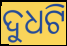
ଦୁଧଟି